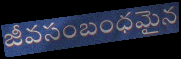
జీవసంబంధమైన